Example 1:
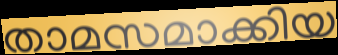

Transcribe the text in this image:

താമസമാക്കിയ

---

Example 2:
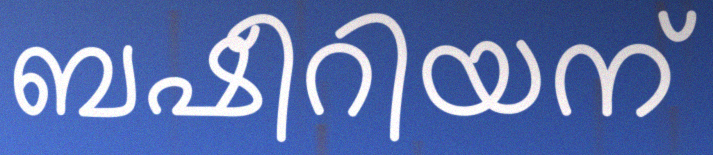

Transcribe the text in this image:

ബഷീറിയന്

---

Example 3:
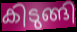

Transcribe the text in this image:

കിടുങ്ങി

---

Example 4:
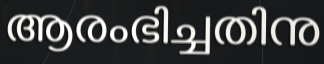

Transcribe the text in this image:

ആരംഭിച്ചതിനു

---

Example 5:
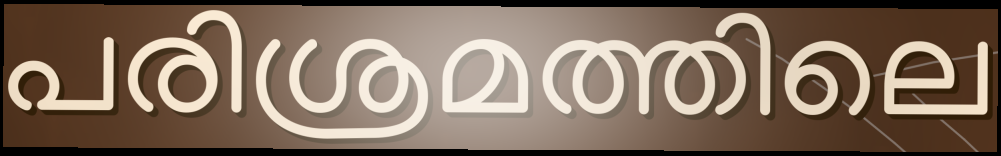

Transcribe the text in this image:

പരിശ്രമത്തിലെ